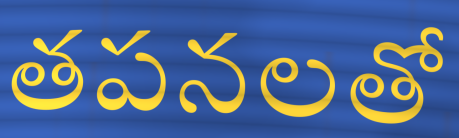
తపనలతో